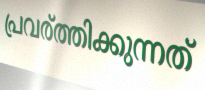
പ്രവര്ത്തിക്കുന്നത്